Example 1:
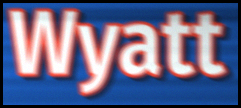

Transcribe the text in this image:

Wyatt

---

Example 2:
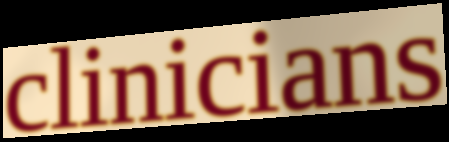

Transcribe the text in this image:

clinicians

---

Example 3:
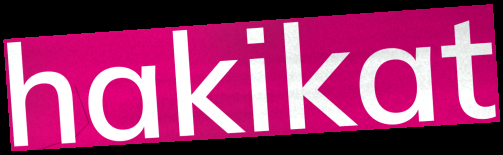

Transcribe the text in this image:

hakikat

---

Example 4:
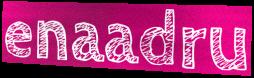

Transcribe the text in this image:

enaadru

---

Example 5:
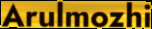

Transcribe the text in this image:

Arulmozhi